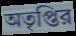
অতৃপ্তির